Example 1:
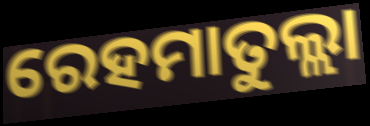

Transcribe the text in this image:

ରେହମାତୁଲ୍ଲା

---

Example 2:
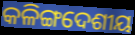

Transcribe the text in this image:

କଳିଙ୍ଗଦେଶୀୟ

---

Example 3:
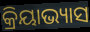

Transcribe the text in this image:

କ୍ରିୟାଭ୍ୟାସ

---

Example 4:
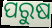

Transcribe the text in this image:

ପରୁଷ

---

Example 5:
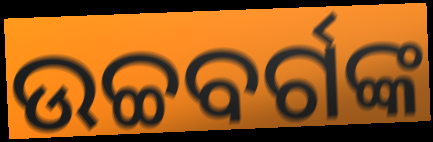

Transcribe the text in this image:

ଉଚ୍ଚବର୍ଗଙ୍କ